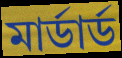
মার্ডার্ড